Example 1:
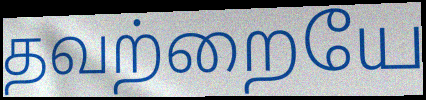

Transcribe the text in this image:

தவற்றையே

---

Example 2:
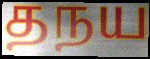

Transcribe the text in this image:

தநய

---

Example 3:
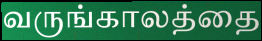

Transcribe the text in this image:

வருங்காலத்தை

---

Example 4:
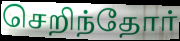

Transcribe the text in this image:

செறிந்தோர்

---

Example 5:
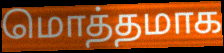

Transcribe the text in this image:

மொத்தமாக